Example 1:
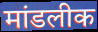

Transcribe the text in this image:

मांडलीक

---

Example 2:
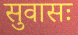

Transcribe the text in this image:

सुवासः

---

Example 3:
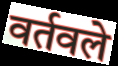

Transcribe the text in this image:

वर्तवले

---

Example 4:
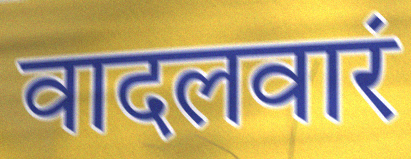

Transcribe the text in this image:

वादलवारं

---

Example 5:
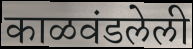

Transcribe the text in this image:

काळवंडलेली